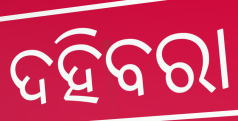
ଦହିବରା